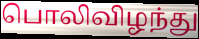
பொலிவிழந்து